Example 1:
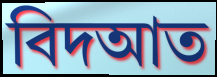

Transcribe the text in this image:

বিদআত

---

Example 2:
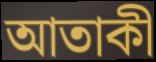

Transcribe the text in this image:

আতাকী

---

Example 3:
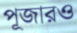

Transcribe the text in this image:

পূজারও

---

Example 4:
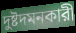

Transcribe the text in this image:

দুষ্টদমনকারী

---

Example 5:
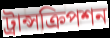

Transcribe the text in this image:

ট্রান্সক্রিপশন